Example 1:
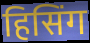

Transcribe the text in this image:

हिसिंग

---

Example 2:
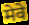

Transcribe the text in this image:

मेवे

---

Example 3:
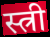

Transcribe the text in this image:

स्‍त्री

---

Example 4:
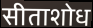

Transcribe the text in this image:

सीताशोध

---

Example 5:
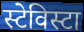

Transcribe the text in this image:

स्टेविस्टा